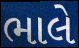
ભાલે